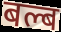
बल्ब